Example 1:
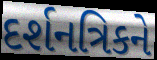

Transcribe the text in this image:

દર્શનત્રિકને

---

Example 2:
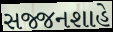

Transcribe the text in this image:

સજ્જનશાહે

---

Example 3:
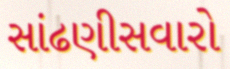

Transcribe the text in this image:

સાંઢણીસવારો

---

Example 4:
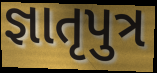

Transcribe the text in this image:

જ્ઞાતૃપુત્ર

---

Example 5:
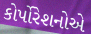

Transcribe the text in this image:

કોર્પોરેશનોએ